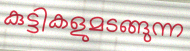
കുട്ടികളുമടങ്ങുന്ന